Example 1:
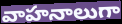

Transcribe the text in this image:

వాహనాలుగా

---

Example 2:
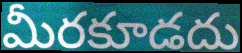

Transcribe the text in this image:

మీరకూడదు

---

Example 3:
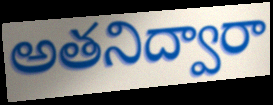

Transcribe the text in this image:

అతనిద్వారా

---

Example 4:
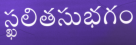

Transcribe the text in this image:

స్ఖలితసుభగం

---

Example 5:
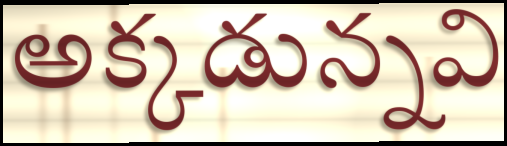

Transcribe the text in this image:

అక్కడున్నవి